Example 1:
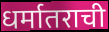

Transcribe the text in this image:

धर्मातराची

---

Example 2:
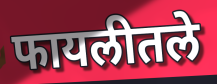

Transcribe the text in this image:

फायलीतले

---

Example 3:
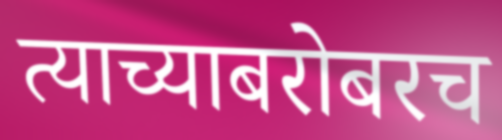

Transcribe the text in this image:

त्याच्याबरोबरच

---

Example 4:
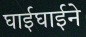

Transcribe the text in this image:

घाईघाईने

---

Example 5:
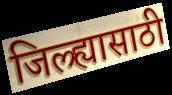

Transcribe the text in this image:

जिल्ह्यासाठी